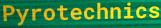
Pyrotechnics